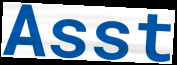
Asst